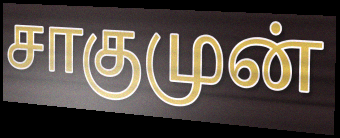
சாகுமுன்